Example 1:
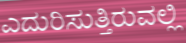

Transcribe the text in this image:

ಎದುರಿಸುತ್ತಿರುವಲ್ಲಿ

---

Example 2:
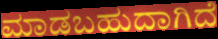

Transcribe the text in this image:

ಮಾಡಬಹುದಾಗಿದೆ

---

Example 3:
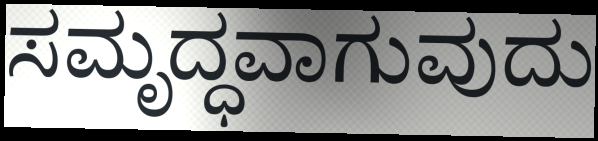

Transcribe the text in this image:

ಸಮೃದ್ಧವಾಗುವುದು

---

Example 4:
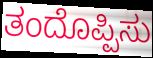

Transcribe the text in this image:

ತಂದೊಪ್ಪಿಸು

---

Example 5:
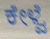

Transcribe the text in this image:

ಕೇಳ್ವೆ